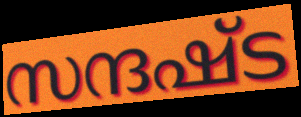
സന്ദഷ്ട